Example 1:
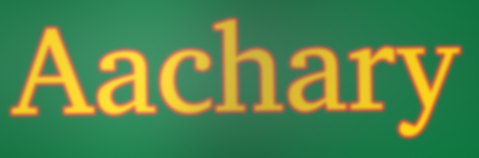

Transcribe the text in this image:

Aachary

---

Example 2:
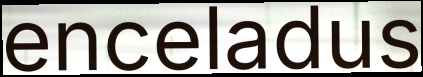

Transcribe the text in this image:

enceladus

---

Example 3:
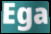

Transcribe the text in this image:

Ega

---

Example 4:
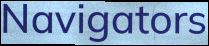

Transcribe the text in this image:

Navigators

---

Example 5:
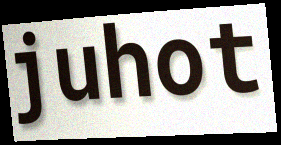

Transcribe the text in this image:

juhot